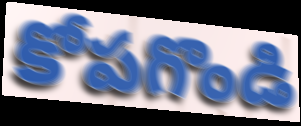
కోపగొండి